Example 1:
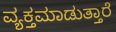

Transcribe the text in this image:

ವ್ಯಕ್ತಮಾಡುತ್ತಾರೆ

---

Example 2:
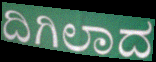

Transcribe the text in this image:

ದಿಗಿಲಾದ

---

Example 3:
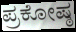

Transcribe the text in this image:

ಪ್ರಕೋಷ್ಠ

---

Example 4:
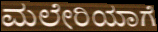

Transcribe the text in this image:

ಮಲೇರಿಯಾಗೆ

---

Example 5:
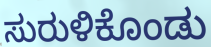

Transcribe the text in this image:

ಸುರುಳಿಕೊಂಡು